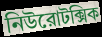
নিউরোটক্সিক